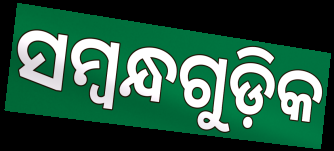
ସମ୍ବନ୍ଧଗୁଡ଼ିକ